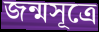
জন্মসূত্ৰে